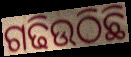
ଗଢିଉଠିଛି